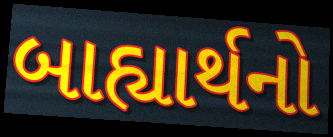
બાહ્યાર્થનો